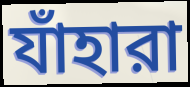
যাঁহারা